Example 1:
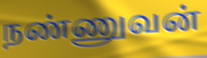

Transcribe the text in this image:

நண்ணுவன்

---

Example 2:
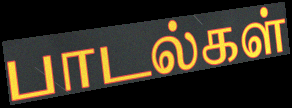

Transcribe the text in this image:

பாடல்கள்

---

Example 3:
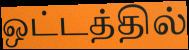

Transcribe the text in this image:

ஒட்டத்தில்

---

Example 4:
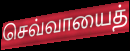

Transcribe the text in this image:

செவ்வாயைத்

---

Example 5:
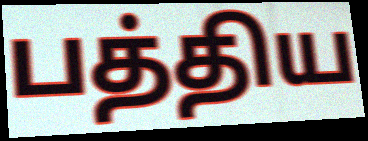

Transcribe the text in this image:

பத்திய